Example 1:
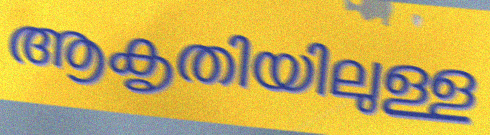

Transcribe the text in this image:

ആകൃതിയിലുള്ള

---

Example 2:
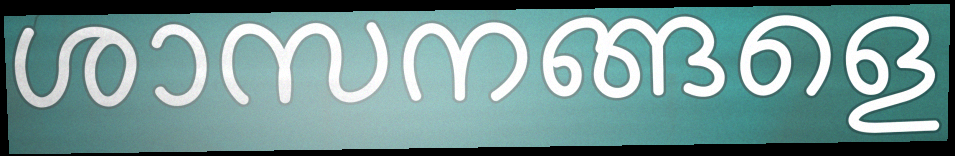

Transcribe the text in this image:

ശാസനങ്ങളെ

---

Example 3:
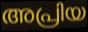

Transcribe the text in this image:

അപ്രിയ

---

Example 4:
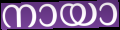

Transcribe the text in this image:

നായാ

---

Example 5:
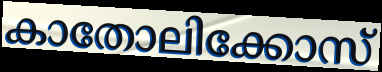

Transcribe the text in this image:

കാതോലിക്കോസ്